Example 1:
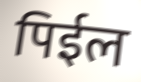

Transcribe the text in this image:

पिईल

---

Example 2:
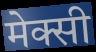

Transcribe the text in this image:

मेक्सी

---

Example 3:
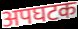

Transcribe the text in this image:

अपघटक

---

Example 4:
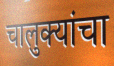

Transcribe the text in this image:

चालुक्यांचा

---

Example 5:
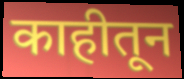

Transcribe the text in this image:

काहीतून